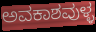
ಅವಕಾಶವುಳ್ಳ